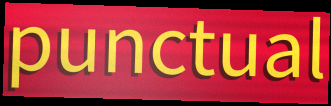
punctual